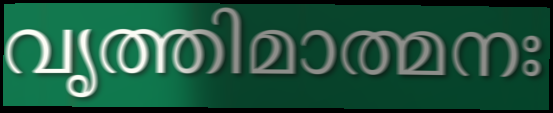
വൃത്തിമാത്മനഃ